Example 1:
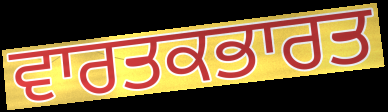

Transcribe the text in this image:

ਵਾਰਤਕਭਾਰਤ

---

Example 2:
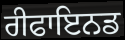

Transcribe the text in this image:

ਰੀਫਾਇਨਡ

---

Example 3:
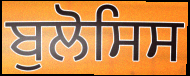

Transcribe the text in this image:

ਬੁਲੋਸਿਸ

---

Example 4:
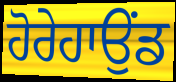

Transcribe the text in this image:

ਹੋਰੇਹਾਉਂਡ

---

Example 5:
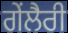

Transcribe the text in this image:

ਗੇਂਲੈਰੀ